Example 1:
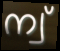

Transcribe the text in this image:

ന്വ്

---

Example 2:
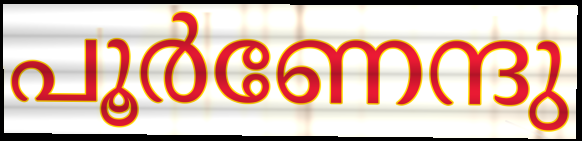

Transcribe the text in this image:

പൂർണേന്ദു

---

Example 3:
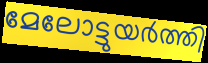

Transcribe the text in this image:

മേലോട്ടുയർത്തി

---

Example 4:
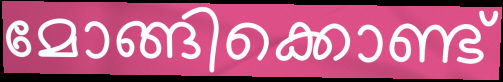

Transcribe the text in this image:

മോങ്ങിക്കൊണ്ട്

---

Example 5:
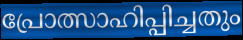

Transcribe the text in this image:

പ്രോത്സാഹിപ്പിച്ചതും